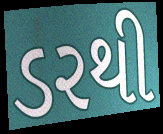
ડરથી